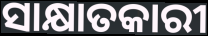
ସାକ୍ଷାତକାରୀ